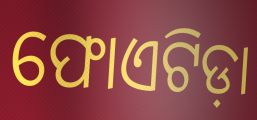
ଫୋଏଟିଡ଼ା